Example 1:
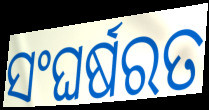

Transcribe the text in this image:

ସଂଘର୍ଷରତ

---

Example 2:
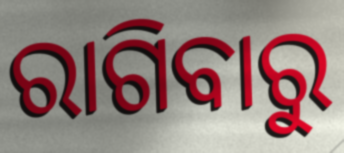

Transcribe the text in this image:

ରାଗିବାରୁ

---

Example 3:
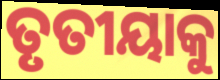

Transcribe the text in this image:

ତୃତୀୟାକୁ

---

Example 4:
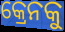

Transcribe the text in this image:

କ୍ରେନକୁ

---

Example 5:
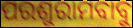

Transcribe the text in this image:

ପରଶୁରାମବାବୁ